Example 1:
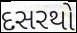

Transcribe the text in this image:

દસરથો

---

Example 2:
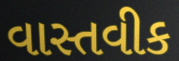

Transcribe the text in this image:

વાસ્તવીક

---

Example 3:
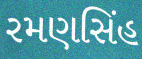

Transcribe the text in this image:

રમણસિંહ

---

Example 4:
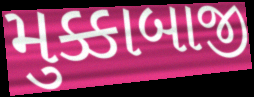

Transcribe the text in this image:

મુક્કાબાજી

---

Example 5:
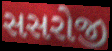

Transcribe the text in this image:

સસરોજી